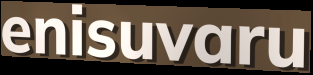
enisuvaru